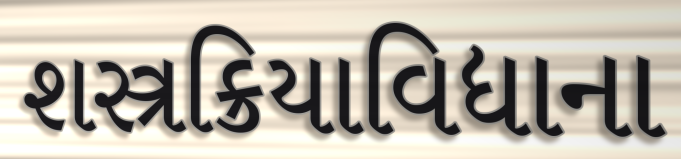
શસ્ત્રક્રિયાવિદ્યાના